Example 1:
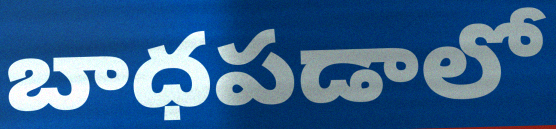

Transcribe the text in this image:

బాధపడాలో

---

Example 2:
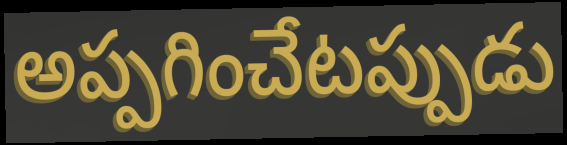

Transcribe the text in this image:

అప్పగించేటప్పుడు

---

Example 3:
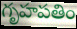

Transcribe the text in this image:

గృహపతిం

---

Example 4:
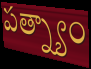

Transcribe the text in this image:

పత్న్యాం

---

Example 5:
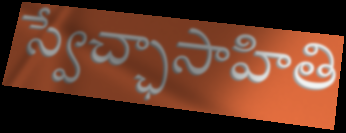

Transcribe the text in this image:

స్వేచ్ఛాసాహితి